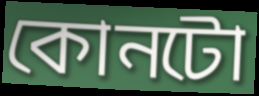
কোনটো